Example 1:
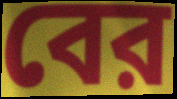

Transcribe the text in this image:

বের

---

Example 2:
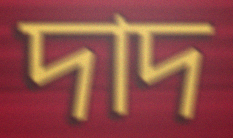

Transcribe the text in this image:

দাদ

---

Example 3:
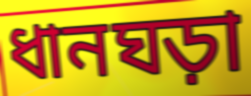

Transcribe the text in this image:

ধানঘড়া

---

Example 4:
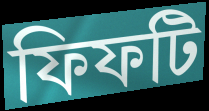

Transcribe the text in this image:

ফিফটি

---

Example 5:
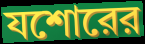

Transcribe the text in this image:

যশোরের